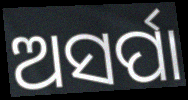
ଅସର୍ପା